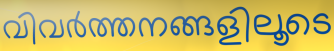
വിവർത്തനങ്ങളിലൂടെ